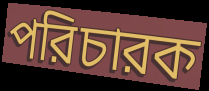
পরিচারক